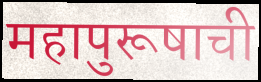
महापुरूषाची